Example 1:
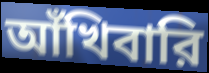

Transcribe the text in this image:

আঁখিবারি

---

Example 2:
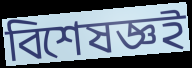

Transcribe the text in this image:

বিশেষজ্ঞই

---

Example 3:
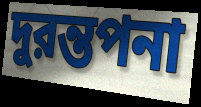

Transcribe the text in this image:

দুরন্তপনা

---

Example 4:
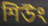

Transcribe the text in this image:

শিউং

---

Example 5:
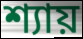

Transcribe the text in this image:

শ্যায়